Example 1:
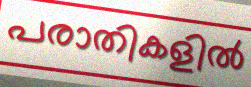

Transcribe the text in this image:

പരാതികളിൽ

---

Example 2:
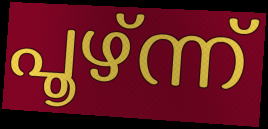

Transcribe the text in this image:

പൂഴ്ന്ന്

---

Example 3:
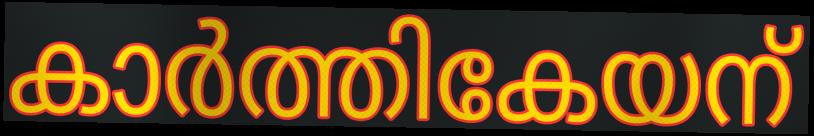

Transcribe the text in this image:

കാർത്തികേയന്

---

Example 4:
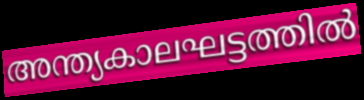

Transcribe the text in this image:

അന്ത്യകാലഘട്ടത്തിൽ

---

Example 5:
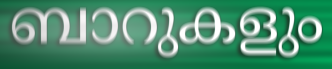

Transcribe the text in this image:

ബാറുകളും